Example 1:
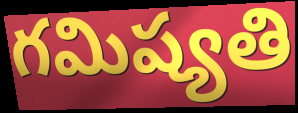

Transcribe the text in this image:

గమిష్యతి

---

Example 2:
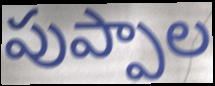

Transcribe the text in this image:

పుప్పాల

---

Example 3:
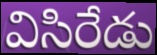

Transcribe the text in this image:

విసిరేడు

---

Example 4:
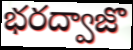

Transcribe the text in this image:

భరద్వాజొ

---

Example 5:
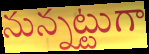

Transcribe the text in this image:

నున్నట్టుగా